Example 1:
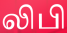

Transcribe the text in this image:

லிபி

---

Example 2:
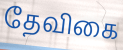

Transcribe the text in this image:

தேவிகை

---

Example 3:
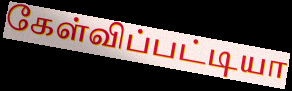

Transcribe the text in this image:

கேள்விப்பட்டியா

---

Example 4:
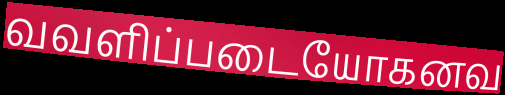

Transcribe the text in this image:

வவளிப்படையோகனவ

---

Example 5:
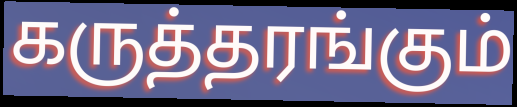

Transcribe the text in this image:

கருத்தரங்கும்